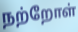
நற்றோள்